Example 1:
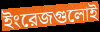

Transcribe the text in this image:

ইংরেজগুলোই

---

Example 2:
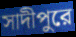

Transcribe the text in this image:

সাদীপুরে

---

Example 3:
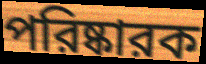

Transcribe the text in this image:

পরিষ্কারক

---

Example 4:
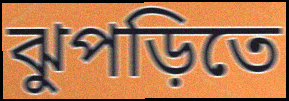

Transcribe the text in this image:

ঝুপড়িতে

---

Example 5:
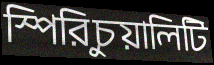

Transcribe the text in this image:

স্পিরিচুয়ালিটি